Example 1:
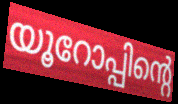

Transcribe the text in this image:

യൂറോപ്പിന്റെ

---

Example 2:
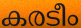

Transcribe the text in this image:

കരടീം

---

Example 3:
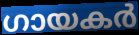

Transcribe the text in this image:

ഗായകർ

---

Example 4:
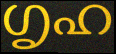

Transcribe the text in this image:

ഗൃഹ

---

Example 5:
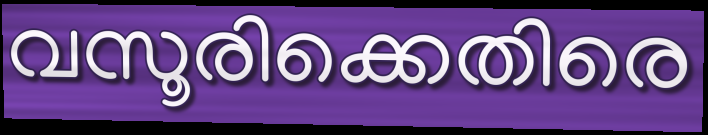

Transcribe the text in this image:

വസൂരിക്കെതിരെ